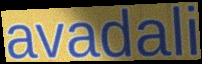
avadali